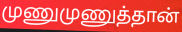
முணுமுணுத்தான்